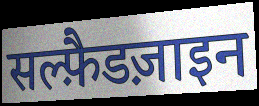
सल्फ़ैडज़ाइन